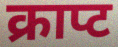
क्राप्ट